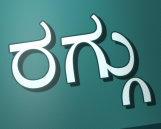
ರಗ್ಗು